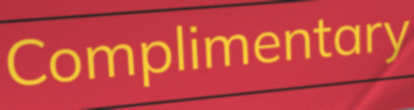
Complimentary